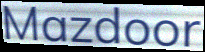
Mazdoor